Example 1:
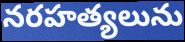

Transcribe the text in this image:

నరహత్యలును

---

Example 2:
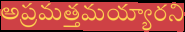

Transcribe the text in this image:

అప్రమత్తమయ్యారని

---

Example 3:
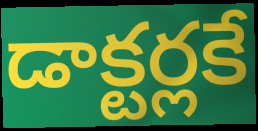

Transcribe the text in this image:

డాక్టర్లకే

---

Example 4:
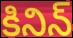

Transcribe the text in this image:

కినిన్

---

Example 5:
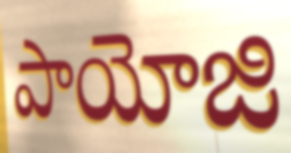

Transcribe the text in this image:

పాయోజి